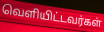
வெளியிட்டவர்கள்